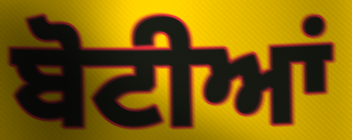
ਬੋਟੀਆਂ